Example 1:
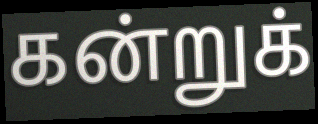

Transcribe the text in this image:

கன்றுக்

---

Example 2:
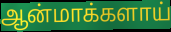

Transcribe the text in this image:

ஆன்மாக்களாய்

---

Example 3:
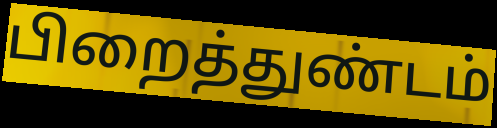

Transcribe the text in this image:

பிறைத்துண்டம்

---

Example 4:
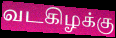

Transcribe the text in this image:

வடகிழக்கு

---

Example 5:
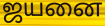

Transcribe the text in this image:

ஜயனை